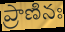
ప్రాణినః